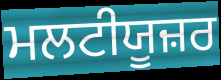
ਮਲਟੀਯੂਜ਼ਰ